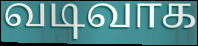
வடிவாக